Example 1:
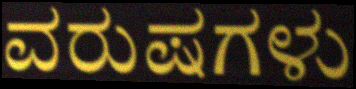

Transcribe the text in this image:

ವರುಷಗಳು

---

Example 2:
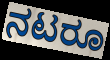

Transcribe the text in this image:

ನಟರೂ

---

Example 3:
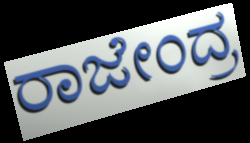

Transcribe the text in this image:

ರಾಜೇಂದ್ರ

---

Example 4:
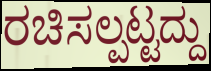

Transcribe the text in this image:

ರಚಿಸಲ್ಪಟ್ಟದ್ದು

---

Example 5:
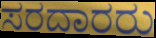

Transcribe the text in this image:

ಸರದಾರರು